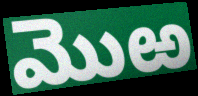
మొఱ